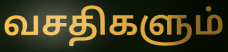
வசதிகளும்